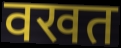
वखत